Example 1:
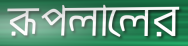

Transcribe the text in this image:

রূপলালের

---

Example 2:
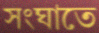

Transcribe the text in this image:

সংঘাতে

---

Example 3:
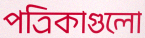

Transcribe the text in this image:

পত্রিকাগুলো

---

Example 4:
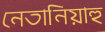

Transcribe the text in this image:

নেতানিয়াহু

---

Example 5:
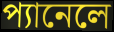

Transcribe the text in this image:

প্যানেলে